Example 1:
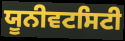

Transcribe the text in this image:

ਯੂਨੀਵਟਸਿਟੀ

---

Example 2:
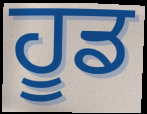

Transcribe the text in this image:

ਹੂਡ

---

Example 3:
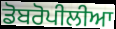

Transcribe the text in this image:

ਡੋਬਰੋਪੀਲੀਆ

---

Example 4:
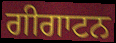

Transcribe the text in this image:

ਗੀਗਾਟਨ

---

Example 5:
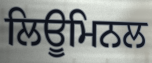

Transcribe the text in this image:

ਲਿਊਮਿਨਲ